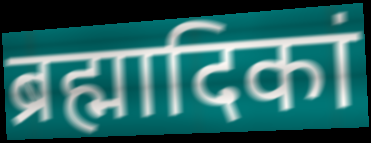
ब्रह्मादिकां